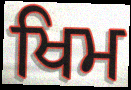
ਖਿਮ